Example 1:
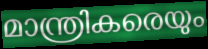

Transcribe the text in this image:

മാന്ത്രികരെയും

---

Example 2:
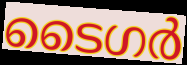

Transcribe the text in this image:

ടൈഗർ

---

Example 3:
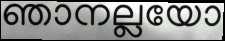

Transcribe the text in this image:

ഞാനല്ലയോ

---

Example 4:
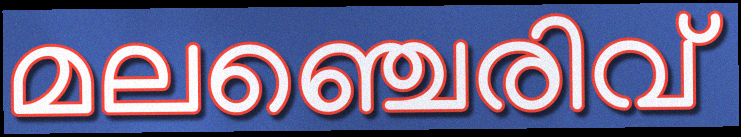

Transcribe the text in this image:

മലഞ്ചെരിവ്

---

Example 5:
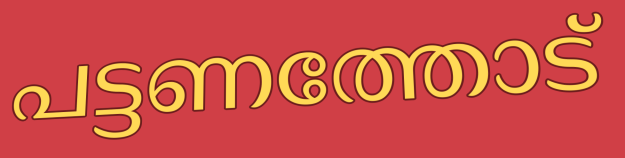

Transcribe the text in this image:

പട്ടണത്തോട്